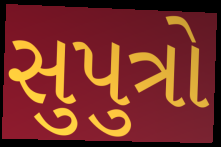
સુપુત્રો